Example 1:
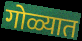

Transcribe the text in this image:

गोळ्यात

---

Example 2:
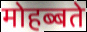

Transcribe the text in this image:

मोहब्बते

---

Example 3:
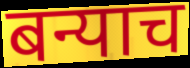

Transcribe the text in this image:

बन्याच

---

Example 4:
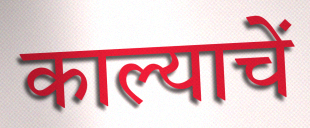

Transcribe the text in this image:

काल्याचें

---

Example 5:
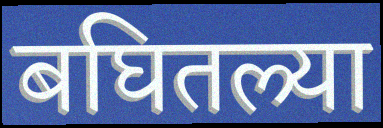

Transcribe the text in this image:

बघितल्या